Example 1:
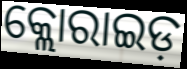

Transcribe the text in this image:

କ୍ଲୋରାଇଡ଼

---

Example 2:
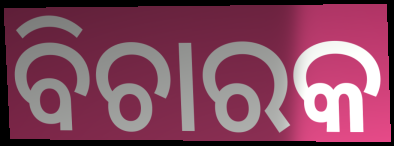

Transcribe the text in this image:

ବିଚାରକ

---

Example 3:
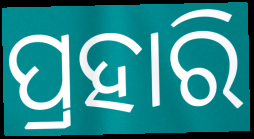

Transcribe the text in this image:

ପ୍ରହାରି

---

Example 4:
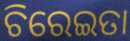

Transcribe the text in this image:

ଚିରେଇତା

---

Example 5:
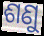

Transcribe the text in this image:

ଶଣୁ